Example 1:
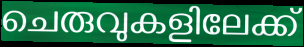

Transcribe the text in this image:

ചെരുവുകളിലേക്ക്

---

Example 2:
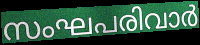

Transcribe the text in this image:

സംഘപരിവാർ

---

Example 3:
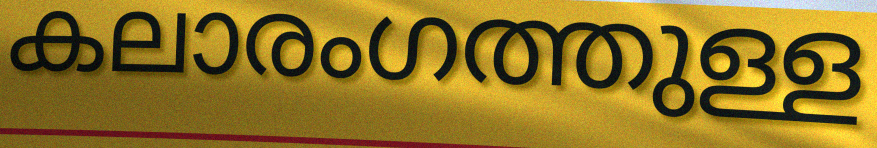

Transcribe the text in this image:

കലാരംഗത്തുള്ള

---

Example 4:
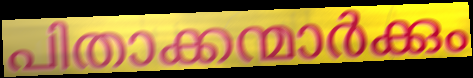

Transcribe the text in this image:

പിതാക്കന്മാർക്കും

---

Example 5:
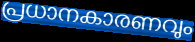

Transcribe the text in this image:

പ്രധാനകാരണവും